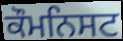
ਕੌਮਨਿਸਟ